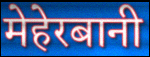
मेहेरबानी